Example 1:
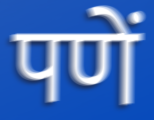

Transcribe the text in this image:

पणें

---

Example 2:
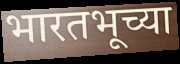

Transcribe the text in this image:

भारतभूच्या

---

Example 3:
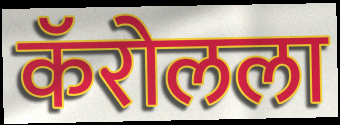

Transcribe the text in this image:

कॅरोलला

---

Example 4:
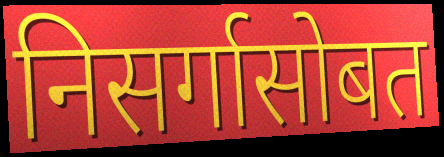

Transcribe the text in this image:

निसर्गासोबत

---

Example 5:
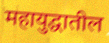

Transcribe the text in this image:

महायुद्धातील